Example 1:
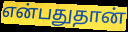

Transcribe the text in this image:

என்பதுதான்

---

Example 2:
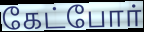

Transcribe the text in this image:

கேட்போர்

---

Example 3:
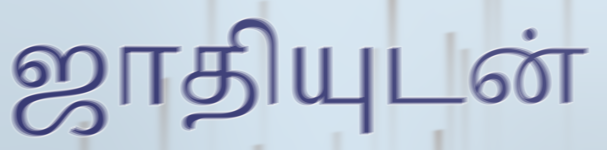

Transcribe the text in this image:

ஜாதியுடன்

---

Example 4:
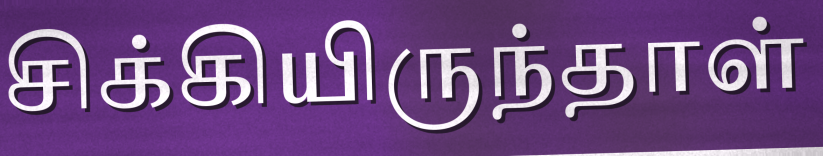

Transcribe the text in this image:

சிக்கியிருந்தாள்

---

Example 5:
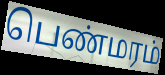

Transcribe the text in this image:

பெண்மரம்